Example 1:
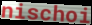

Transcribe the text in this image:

nischoi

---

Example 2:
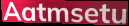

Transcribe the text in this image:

Aatmsetu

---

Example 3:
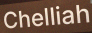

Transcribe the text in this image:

Chelliah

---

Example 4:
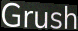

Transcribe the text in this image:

Grush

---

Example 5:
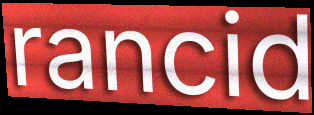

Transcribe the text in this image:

rancid